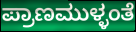
ಪ್ರಾಣಮುಳ್ಳಂತೆ